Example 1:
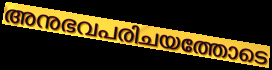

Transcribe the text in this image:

അനുഭവപരിചയത്തോടെ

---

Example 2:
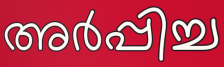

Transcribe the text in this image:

അർപ്പിച്ച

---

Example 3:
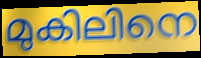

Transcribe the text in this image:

മുകിലിനെ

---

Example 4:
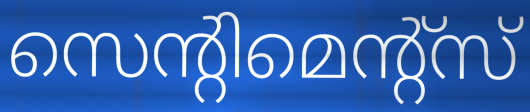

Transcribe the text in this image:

സെന്റിമെന്റ്സ്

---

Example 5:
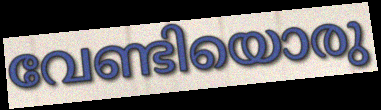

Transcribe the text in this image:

വേണ്ടിയൊരു